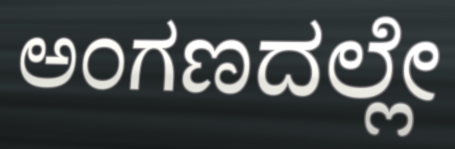
ಅಂಗಣದಲ್ಲೇ